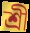
শ্ৰী